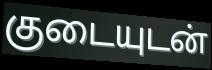
குடையுடன்